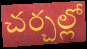
చర్చల్లో